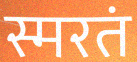
स्मरतं